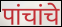
पांचांचे